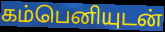
கம்பெனியுடன்